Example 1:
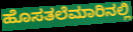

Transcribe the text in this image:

ಹೊಸತಲೆಮಾರಿನಲ್ಲಿ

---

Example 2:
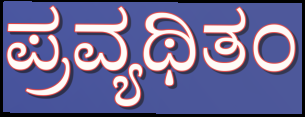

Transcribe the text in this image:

ಪ್ರವ್ಯಥಿತಂ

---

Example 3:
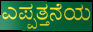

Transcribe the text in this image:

ಎಪ್ಪತ್ತನೆಯ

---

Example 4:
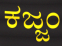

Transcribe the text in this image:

ಕಜ್ಜಂ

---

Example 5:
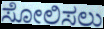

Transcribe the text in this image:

ಸೋಲಿಸಲು